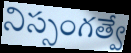
నిస్సంగత్వే